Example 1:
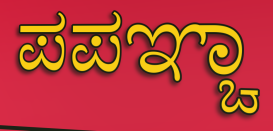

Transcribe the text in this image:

ಪಪಞ್ಚಾ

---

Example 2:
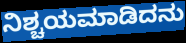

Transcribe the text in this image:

ನಿಶ್ಚಯಮಾಡಿದನು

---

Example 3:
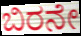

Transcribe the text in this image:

ಬಿರನೇ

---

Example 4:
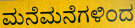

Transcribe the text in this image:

ಮನೆಮನೆಗಳಿಂದ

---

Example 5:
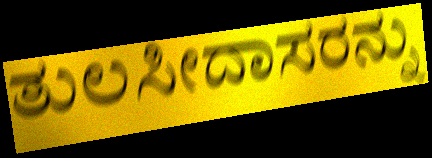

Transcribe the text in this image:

ತುಲಸೀದಾಸರನ್ನು